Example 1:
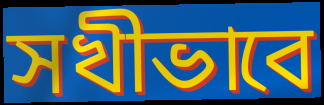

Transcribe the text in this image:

সখীভাবে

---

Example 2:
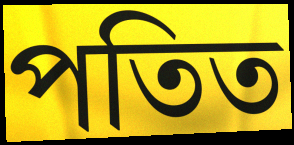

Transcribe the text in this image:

পতিত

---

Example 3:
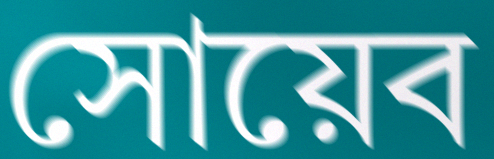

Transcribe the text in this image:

সোয়েব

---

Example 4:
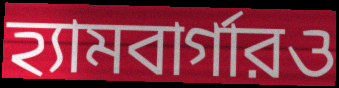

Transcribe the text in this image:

হ্যামবার্গারও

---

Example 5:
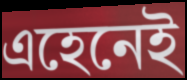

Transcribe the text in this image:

এহেনেই